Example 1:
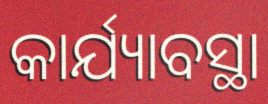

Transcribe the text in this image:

କାର୍ଯ୍ୟାବସ୍ଥା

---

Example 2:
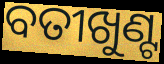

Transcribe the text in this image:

ବତୀଖୁଣ୍ଟ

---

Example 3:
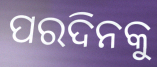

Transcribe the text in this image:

ପରଦିନକୁ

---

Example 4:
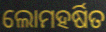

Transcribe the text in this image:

ଲୋମହର୍ଷିତ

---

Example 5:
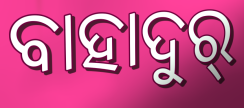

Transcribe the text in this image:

ବାହାଦୁର୍